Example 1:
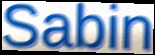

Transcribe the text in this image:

Sabin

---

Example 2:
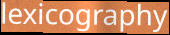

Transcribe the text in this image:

lexicography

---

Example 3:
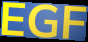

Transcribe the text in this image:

EGF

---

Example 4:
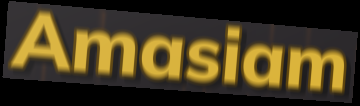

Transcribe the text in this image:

Amasiam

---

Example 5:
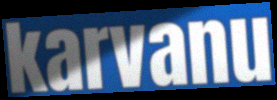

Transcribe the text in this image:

karvanu